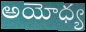
అయోధ్య